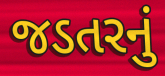
જડતરનું